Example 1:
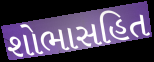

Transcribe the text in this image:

શોભાસહિત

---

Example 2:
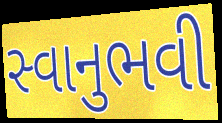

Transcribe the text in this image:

સ્વાનુભવી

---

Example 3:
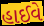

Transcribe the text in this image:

હાઈવે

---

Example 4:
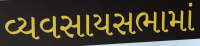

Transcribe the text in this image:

વ્યવસાયસભામાં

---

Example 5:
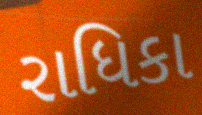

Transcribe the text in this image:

રાધિકા